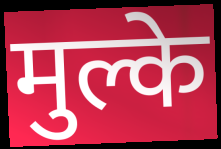
मुल्के